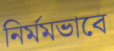
নির্মমভাবে